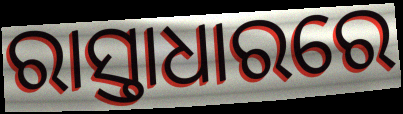
ରାସ୍ତାଧାରରେ